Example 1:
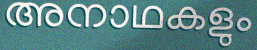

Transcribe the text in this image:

അനാഥകളും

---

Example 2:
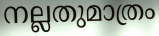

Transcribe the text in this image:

നല്ലതുമാത്രം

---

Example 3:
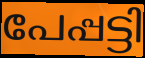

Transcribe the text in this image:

പേപ്പട്ടി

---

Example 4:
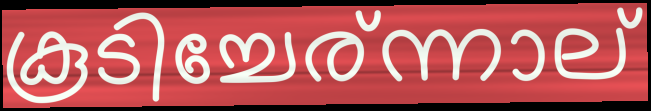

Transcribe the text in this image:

കൂടിച്ചേര്ന്നാല്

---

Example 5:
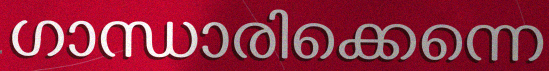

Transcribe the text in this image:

ഗാന്ധാരിക്കെന്നെ